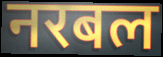
नरबल